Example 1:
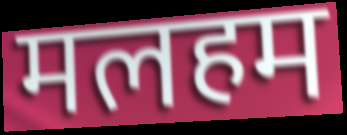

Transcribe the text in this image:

मलहम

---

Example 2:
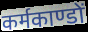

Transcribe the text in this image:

कर्मकाण्डों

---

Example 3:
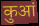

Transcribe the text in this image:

कुआं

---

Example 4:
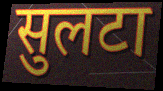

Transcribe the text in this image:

सुलटा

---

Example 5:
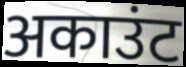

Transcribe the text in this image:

अकाउंट